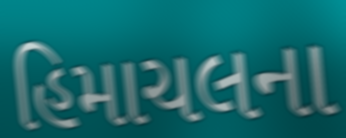
હિમાચલના